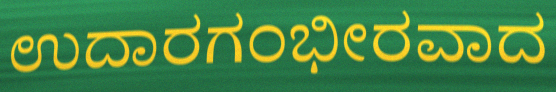
ಉದಾರಗಂಭೀರವಾದ